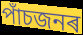
পাঁচজনৰ